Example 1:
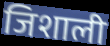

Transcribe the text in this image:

जिशाली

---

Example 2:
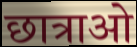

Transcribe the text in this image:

छात्राओ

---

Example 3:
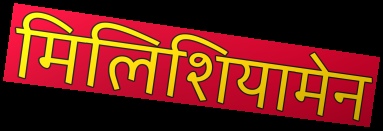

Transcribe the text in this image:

मिलिशियामेन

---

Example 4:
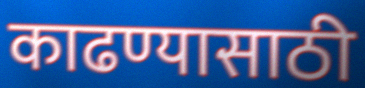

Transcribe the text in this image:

काढण्यासाठी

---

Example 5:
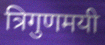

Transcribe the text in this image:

त्रिगुणमयी